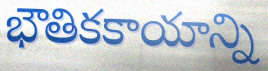
భౌతికకాయాన్ని